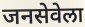
जनसेवेला